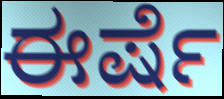
ಈರ್ಷೆ